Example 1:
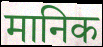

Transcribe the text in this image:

मानिक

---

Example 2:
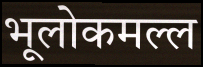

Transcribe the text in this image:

भूलोकमल्ल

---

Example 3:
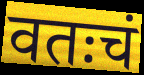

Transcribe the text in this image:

वतःचं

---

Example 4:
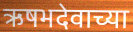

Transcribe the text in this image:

ऋषभदेवाच्या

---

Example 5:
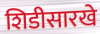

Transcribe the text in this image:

शिडीसारखे